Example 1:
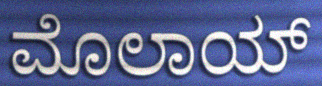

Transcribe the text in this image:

ಮೊಲಾಯ್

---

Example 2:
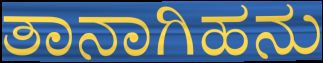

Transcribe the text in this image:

ತಾನಾಗಿಹನು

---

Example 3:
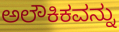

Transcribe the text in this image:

ಅಲೌಕಿಕವನ್ನು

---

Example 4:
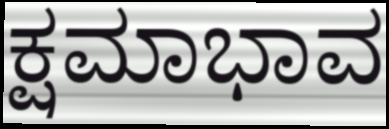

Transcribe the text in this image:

ಕ್ಷಮಾಭಾವ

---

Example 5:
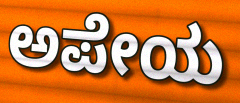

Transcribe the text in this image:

ಅಪೇಯ